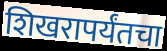
शिखरापर्यंतचा